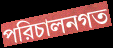
পরিচালনগত